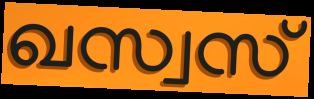
ഖസ്വസ്